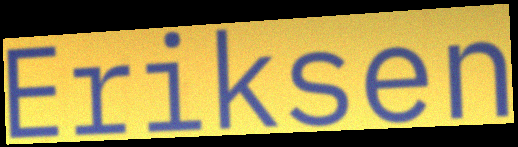
Eriksen